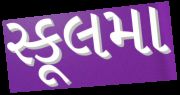
સ્કૂલમા